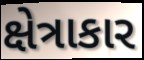
ક્ષેત્રાકાર